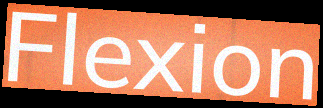
Flexion